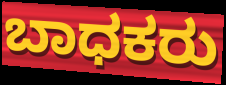
ಬಾಧಕರು